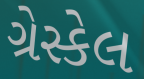
ગ્રેસ્કેલ